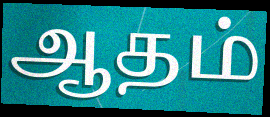
ஆதம்